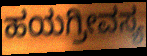
ಹಯಗ್ರೀವಸ್ಯ